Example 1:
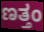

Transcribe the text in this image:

ಣತ್ತಂ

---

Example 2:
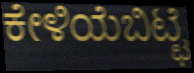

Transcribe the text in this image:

ಕೇಳಿಯೆಬಿಟ್ಟೆ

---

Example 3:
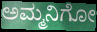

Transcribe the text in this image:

ಅಮ್ಮನಿಗೋ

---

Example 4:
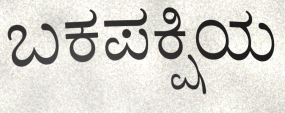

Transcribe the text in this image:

ಬಕಪಕ್ಷಿಯ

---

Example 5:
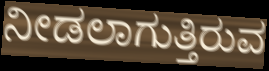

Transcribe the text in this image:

ನೀಡಲಾಗುತ್ತಿರುವ